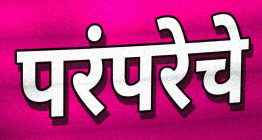
परंपरेचे